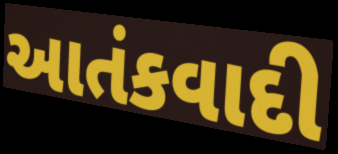
આતંકવાદી